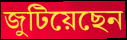
জুটিয়েছেন